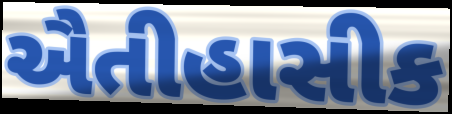
ઐતીહાસીક